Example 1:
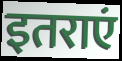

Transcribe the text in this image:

इतराएं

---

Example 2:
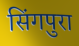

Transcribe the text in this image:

सिंगपुरा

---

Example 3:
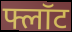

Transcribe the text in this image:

फ्लॉट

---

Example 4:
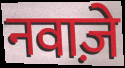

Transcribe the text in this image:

नवाज़े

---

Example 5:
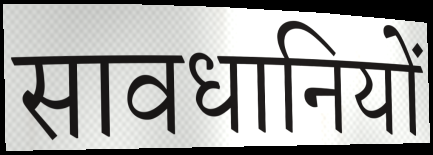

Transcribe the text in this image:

सावधानियों